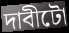
দাবীটো